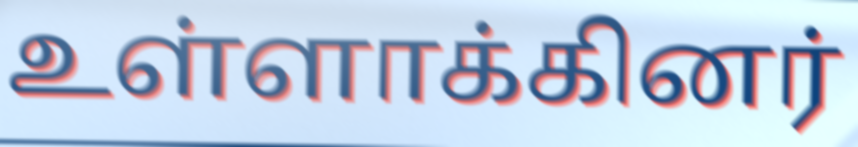
உள்ளாக்கினர்